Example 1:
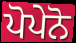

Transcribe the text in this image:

ਪੋਪੇਨੋ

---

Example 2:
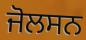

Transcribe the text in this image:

ਜੋਲਸਨ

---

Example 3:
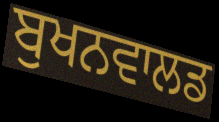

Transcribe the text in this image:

ਬੁਖਨਵਾਲਡ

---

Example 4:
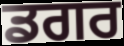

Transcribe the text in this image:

ਡਗਰ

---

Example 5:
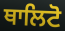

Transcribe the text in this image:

ਥਾਲਿਟੋ